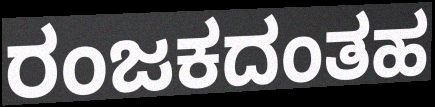
ರಂಜಕದಂತಹ